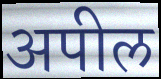
अपील